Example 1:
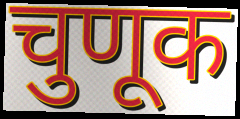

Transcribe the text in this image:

चुणूक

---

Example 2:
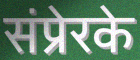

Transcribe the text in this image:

संप्रेरके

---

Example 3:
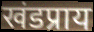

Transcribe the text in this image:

खंडप्राय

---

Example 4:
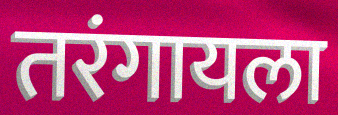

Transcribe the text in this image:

तरंगायला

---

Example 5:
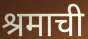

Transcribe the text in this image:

श्रमाची